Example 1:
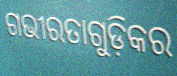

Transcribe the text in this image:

ଗଭୀରତାଗୁଡ଼ିକର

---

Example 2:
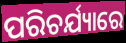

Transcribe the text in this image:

ପରିଚର୍ଯ୍ୟାରେ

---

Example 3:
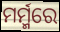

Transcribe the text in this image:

ମର୍ମ୍ମରେ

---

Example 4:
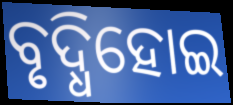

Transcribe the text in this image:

ବୃଦ୍ଧିହୋଇ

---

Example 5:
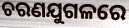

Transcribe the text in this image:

ଚରଣଯୁଗଳରେ